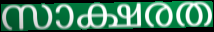
സാക്ഷരത